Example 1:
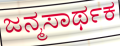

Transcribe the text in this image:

ಜನ್ಮಸಾರ್ಥಕ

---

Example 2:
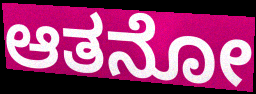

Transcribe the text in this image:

ಆತನೋ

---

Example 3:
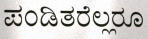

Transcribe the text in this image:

ಪಂಡಿತರೆಲ್ಲರೂ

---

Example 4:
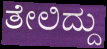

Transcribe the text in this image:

ತೇಲಿದ್ದು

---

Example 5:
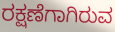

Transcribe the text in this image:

ರಕ್ಷಣೆಗಾಗಿರುವ